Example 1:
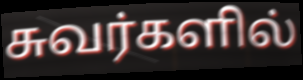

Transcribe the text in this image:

சுவர்களில்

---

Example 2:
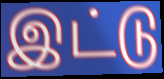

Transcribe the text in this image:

இட்டு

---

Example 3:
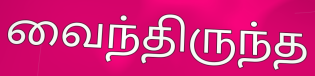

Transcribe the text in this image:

வைந்திருந்த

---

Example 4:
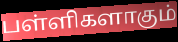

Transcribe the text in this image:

பள்ளிகளாகும்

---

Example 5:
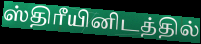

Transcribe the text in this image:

ஸ்திரீயினிடத்தில்